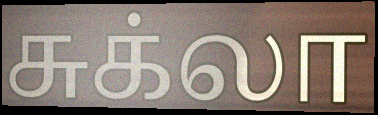
சுக்லா